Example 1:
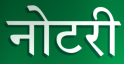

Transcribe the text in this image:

नोटरी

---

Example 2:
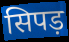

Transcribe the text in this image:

सिपड़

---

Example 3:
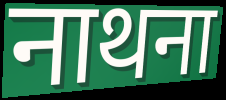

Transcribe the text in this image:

नाथना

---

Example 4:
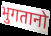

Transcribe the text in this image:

भुगतानो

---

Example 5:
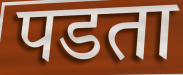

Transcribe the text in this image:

पडता